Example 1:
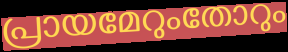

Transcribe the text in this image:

പ്രായമേറുംതോറും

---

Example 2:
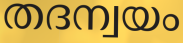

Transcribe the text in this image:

തദന്വയം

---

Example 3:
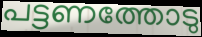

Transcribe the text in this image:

പട്ടണത്തോടു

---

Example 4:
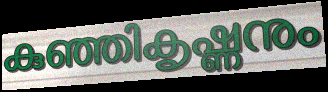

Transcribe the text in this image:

കുഞ്ഞികൃഷ്ണനും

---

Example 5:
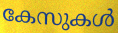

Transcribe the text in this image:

കേസുകൾ